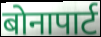
बोनापार्ट